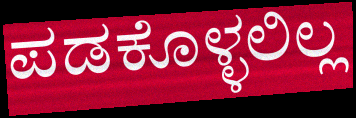
ಪಡಕೊಳ್ಳಲಿಲ್ಲ